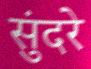
सुंदरे